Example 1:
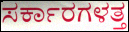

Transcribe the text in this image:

ಸರ್ಕಾರಗಳತ್ತ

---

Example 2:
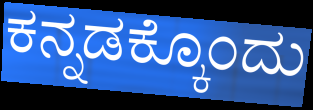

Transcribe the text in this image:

ಕನ್ನಡಕ್ಕೊಂದು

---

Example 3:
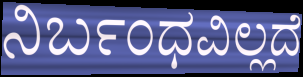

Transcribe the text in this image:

ನಿರ್ಬಂಧವಿಲ್ಲದೆ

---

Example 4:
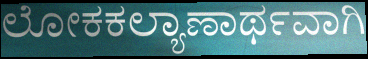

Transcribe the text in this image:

ಲೋಕಕಲ್ಯಾಣಾರ್ಥವಾಗಿ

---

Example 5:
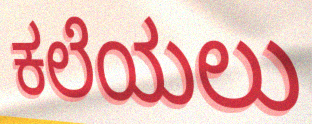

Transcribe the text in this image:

ಕಲೆಯಲು